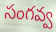
సంగవ్వ